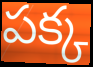
పక్క